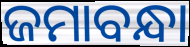
ଜମାବନ୍ଧା